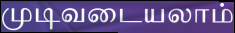
முடிவடையலாம்